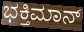
ಭಕ್ತಿಮಾನ್